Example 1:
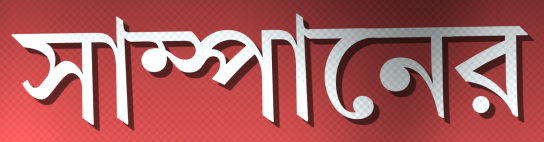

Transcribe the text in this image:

সাম্পানের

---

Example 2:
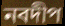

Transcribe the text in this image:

নবদীপ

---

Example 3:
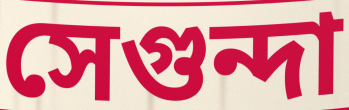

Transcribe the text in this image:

সেগুন্দা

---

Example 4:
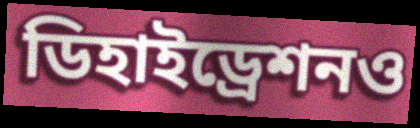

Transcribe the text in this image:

ডিহাইড্রেশনও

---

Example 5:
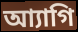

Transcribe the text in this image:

আ্যাগি